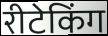
रीटेकिंग